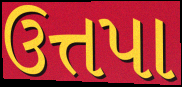
ઉત્તપા